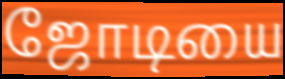
ஜோடியை